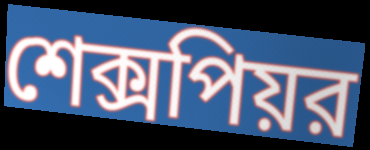
শেক্সপিয়র